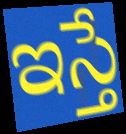
ఇస్తే